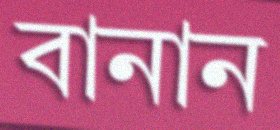
বানান